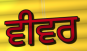
ਵੀਵਰ